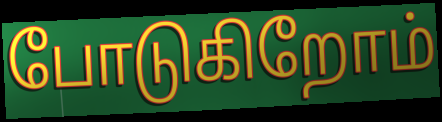
போடுகிறோம்